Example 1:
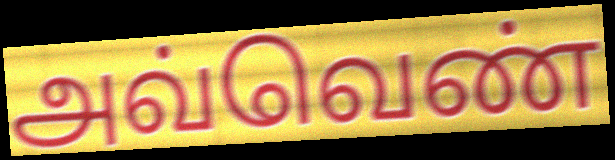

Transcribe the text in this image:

அவ்வெண்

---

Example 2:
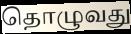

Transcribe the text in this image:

தொழுவது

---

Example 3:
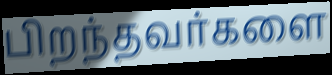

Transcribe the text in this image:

பிறந்தவர்களை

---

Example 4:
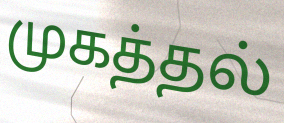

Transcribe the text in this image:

முகத்தல்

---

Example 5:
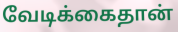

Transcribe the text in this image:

வேடிக்கைதான்